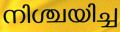
നിശ്ചയിച്ച